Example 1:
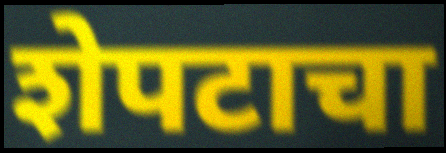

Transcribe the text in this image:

शेपटाचा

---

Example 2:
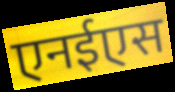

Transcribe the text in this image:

एनईएस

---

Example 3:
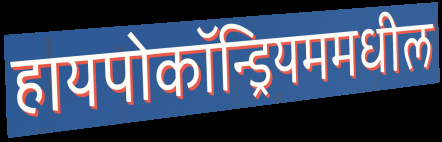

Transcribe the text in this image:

हायपोकॉन्ड्रियममधील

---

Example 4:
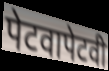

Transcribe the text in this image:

पेटवापेटवी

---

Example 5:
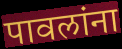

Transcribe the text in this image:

पावलांना